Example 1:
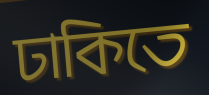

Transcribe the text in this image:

ঢাকিতে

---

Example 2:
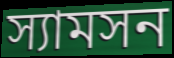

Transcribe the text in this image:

স্যামসন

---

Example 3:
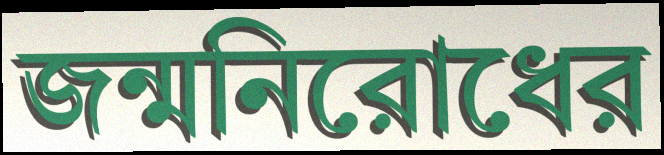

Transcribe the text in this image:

জন্মনিরোধের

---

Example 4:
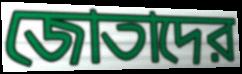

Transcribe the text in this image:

জোতাদের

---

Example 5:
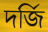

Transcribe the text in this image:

দর্জি